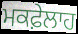
ਮਕਫ਼ੇਲਾਹ